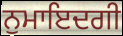
ਨੁਮਾਇਦਗੀ